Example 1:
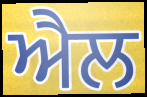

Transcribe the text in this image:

ਐਲ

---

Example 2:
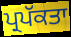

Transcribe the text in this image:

ਪ੍ਰਪੱਕਤਾ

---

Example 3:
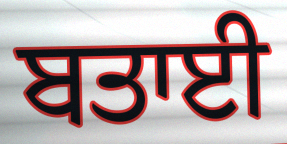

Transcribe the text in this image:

ਬਤਾਈ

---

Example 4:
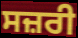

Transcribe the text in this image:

ਸਜ਼ਰੀ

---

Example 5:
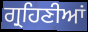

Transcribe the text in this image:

ਗ੍ਰਹਿਣੀਆਂ